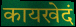
कायखेदं